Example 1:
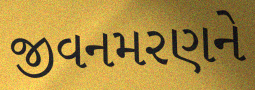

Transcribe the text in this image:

જીવનમરણને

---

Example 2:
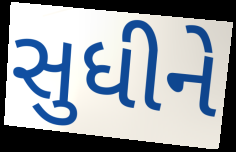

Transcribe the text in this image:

સુધીને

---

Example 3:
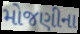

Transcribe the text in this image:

મોજણીના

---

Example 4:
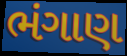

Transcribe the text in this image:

ભંગાણ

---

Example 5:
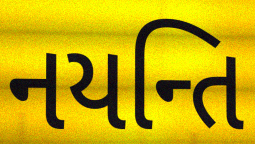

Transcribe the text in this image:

નયન્તિ